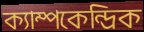
ক্যাম্পকেন্দ্রিক